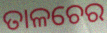
ତାଳଚେର